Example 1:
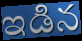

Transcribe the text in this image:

ఇడిన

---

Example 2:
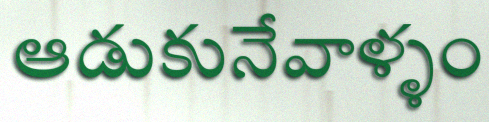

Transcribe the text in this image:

ఆడుకునేవాళ్ళం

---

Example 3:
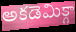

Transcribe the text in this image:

అకడెమిక్గా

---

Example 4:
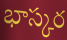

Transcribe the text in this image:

భాస్కర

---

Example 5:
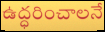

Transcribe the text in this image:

ఉద్ధరించాలనే